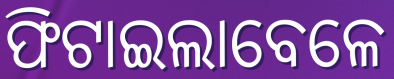
ଫିଟାଇଲାବେଳେ